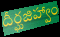
దీర్ఘజిహ్వాం